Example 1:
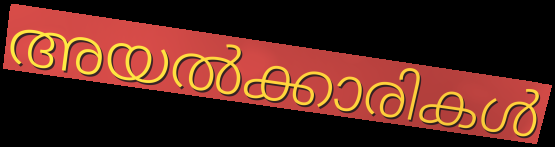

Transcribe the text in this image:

അയൽക്കാരികൾ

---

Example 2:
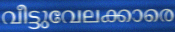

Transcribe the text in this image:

വീട്ടുവേലക്കാരെ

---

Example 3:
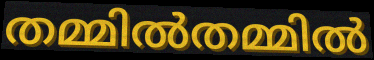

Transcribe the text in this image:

തമ്മിൽതമ്മിൽ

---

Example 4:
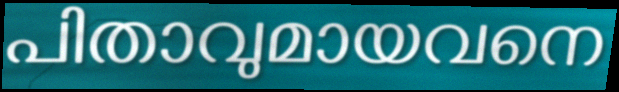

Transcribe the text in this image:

പിതാവുമായവനെ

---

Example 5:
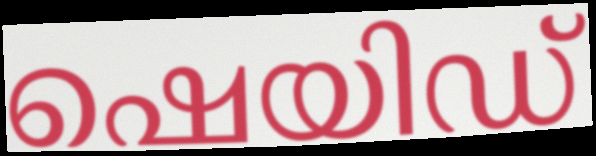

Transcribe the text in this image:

ഷെയിഡ്